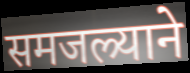
समजल्याने